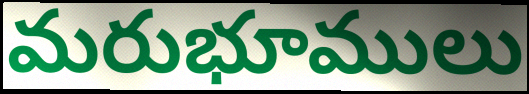
మరుభూములు